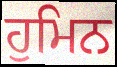
ਹੁਮਿਨ